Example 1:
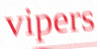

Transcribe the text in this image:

vipers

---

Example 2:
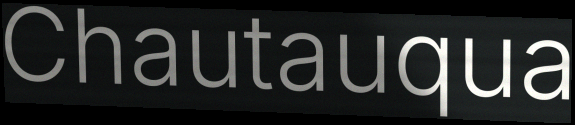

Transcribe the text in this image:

Chautauqua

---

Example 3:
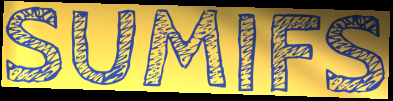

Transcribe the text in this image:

SUMIFS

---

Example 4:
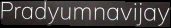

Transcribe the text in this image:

Pradyumnavijay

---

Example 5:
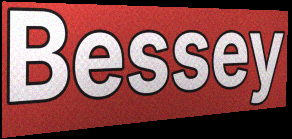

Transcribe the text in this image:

Bessey